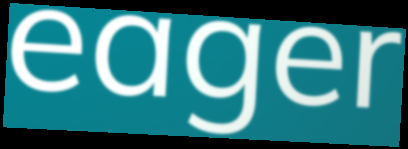
eager